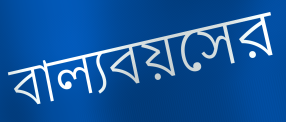
বাল্যবয়সের